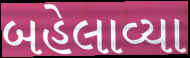
બહેલાવ્યા